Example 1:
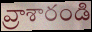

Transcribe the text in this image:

వ్రాశారండి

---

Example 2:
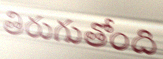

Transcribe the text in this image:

తిరుగుతోంది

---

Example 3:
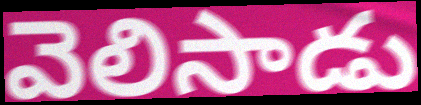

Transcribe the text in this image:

వెలిసాడు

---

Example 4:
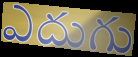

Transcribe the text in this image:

ఎదుగు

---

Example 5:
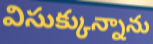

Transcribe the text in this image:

విసుక్కున్నాను